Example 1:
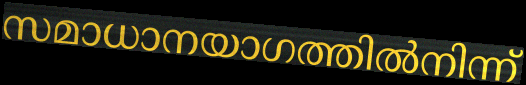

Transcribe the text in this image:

സമാധാനയാഗത്തിൽനിന്ന്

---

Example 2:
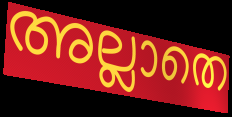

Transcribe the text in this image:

അല്ലാതെ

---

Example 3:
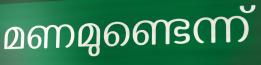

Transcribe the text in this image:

മണമുണ്ടെന്ന്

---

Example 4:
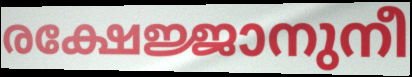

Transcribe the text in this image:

രക്ഷേജ്ജാനുനീ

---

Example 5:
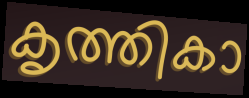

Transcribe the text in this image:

കൃത്തികാ